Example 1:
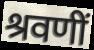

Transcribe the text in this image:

श्रवणीं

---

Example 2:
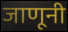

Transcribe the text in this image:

जाणूनी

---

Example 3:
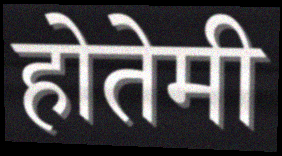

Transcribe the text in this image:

होतेमी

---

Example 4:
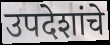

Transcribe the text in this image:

उपदेशांचे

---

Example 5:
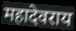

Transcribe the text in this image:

महादेवराय